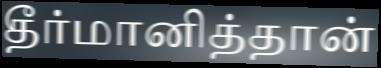
தீர்மானித்தான்